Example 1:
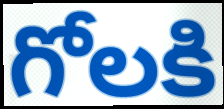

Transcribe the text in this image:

గోలకి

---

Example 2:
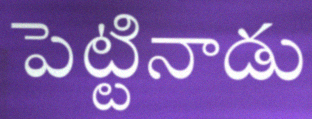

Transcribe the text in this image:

పెట్టినాడు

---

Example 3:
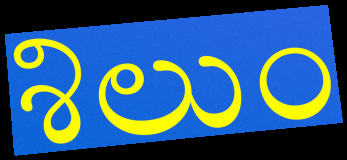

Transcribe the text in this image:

శిలుం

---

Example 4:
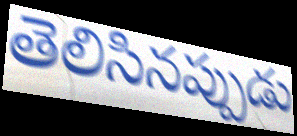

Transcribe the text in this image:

తెలిసినప్పుడు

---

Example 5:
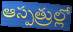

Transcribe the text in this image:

ఆస్పత్రుల్లో